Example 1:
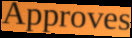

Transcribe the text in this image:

Approves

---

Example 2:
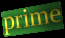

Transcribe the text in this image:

prime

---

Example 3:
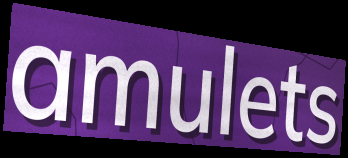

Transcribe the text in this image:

amulets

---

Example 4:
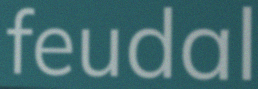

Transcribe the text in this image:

feudal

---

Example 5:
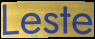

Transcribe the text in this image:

Leste